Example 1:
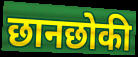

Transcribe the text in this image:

छानछोकी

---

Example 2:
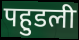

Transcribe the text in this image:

पहुडली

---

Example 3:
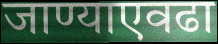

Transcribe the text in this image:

जाण्याएवढा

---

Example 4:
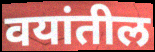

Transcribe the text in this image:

वयांतील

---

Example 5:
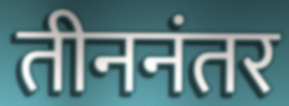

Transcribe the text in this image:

तीननंतर